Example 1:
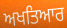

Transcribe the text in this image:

ਅਖਤਿਆਰ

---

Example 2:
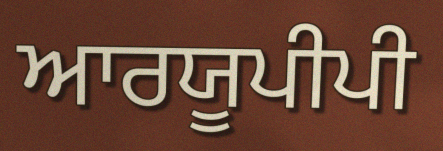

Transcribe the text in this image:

ਆਰਯੂਪੀਪੀ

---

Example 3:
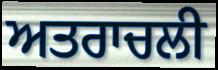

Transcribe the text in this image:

ਅਤਰਾਚਲੀ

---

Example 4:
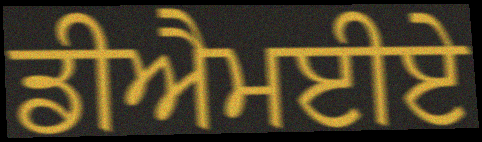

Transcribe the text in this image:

ਡੀਐਮਈਏ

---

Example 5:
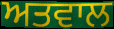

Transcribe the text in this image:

ਅਤਵਾਲ